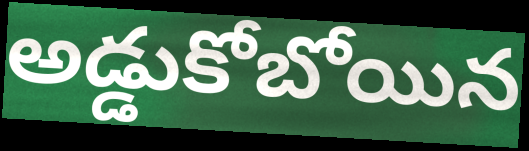
అడ్డుకోబోయిన